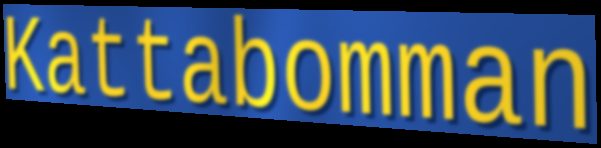
Kattabomman